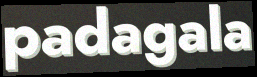
padagala